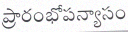
ప్రారంభోపన్యాసం